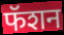
फॅशन